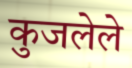
कुजलेले